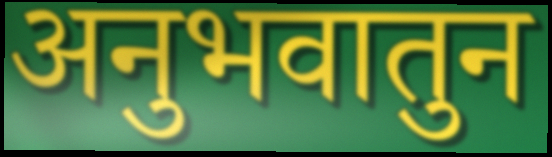
अनुभवातुन